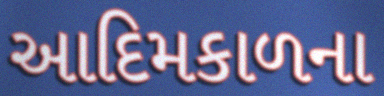
આદિમકાળના